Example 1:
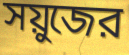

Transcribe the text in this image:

সয়ুজের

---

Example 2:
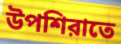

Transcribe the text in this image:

উপশিরাতে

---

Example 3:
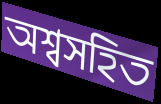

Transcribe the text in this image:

অশ্বসহিত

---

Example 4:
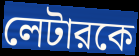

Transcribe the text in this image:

লেটারকে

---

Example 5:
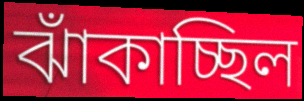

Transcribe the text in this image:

ঝাঁকাচ্ছিল